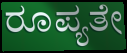
ರೂಪ್ಯತೇ